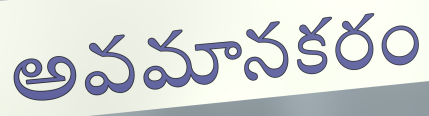
అవమానకరం